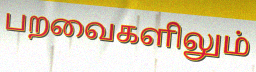
பறவைகளிலும்